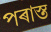
পৰাস্ত